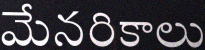
మేనరికాలు